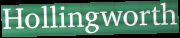
Hollingworth